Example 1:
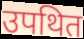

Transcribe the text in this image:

उपथित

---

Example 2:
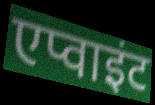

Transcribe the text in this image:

एप्वाइंट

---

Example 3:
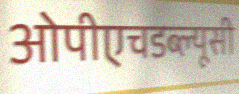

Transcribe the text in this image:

ओपीएचडब्ल्यूसी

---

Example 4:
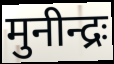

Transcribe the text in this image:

मुनीन्द्रः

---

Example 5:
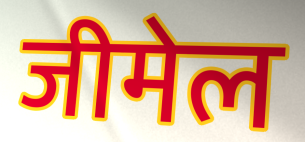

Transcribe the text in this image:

जीमेल